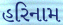
હરિનામ